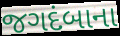
જગદંબાના